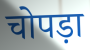
चोपड़ा